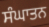
ਸੰਘਾਤਨ